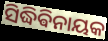
ସିଦ୍ଧିଵିନାୟକ